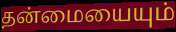
தன்மையையும்